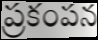
ప్రకంపన